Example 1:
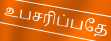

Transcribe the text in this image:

உபசரிப்பதே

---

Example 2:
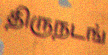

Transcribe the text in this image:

திருநடங்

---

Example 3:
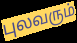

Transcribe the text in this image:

புலவரும்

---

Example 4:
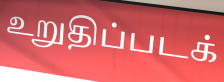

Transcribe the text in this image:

உறுதிப்படக்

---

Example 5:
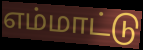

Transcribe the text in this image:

எம்மாட்டு